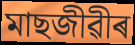
মাছজীৱীৰ